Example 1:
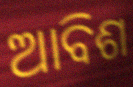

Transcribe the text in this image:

ଆବିଶ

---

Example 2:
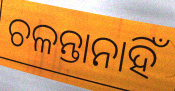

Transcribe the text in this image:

ଚଳନ୍ତାନାହିଁ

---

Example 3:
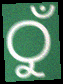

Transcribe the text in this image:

ଠୁଁ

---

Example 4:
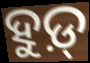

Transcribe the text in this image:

ହୁଡ଼୍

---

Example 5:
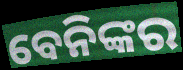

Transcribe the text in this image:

ବେନିଙ୍କର